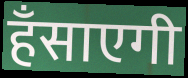
हँसाएगी